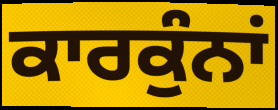
ਕਾਰਕੁੰਨਾਂ